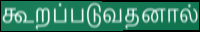
கூறப்படுவதனால்